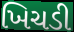
ખિચડી